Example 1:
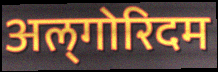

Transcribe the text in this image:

अल्गोरिदम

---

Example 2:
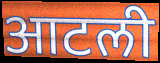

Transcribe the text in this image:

आटली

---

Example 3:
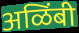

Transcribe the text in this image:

अळिंबी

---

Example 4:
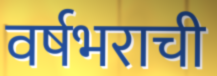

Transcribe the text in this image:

वर्षभराची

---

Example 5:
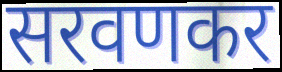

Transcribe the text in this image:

सरवणकर